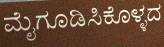
ಮೈಗೂಡಿಸಿಕೊಳ್ಳದ